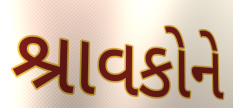
શ્રાવકોને